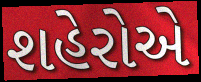
શહેરોએ